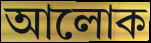
আলোক